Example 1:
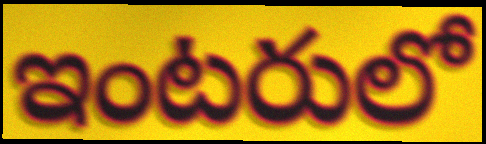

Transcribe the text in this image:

ఇంటరులో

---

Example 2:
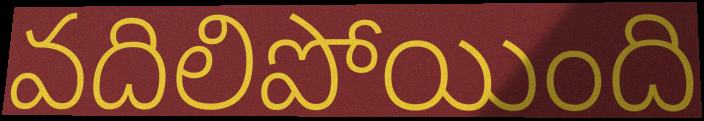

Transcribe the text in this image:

వదిలిపోయింది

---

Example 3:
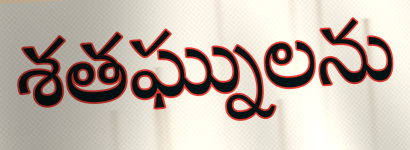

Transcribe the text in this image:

శతఘ్నులను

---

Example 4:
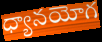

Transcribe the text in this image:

ధ్యానయోగ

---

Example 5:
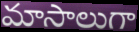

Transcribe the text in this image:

మాసాలుగా